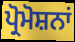
ਪ੍ਰੋਮੋਸ਼ਨਾਂ